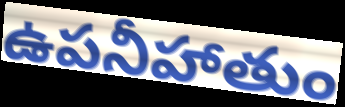
ఉపనీహాతుం